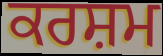
ਕਰਸ਼ਮ